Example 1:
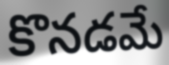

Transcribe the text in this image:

కొనడమే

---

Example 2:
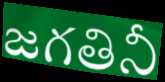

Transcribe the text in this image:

జగతినీ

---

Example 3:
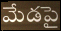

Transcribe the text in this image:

మేడపై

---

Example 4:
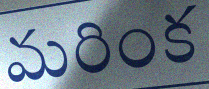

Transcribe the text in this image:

మరింక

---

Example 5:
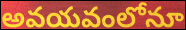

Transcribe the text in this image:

అవయవంలోనూ